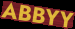
ABBYY